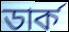
ডার্ক